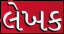
લેખક